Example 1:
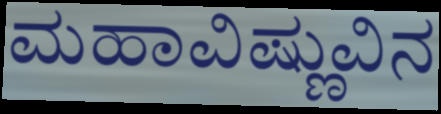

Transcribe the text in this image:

ಮಹಾವಿಷ್ಣುವಿನ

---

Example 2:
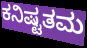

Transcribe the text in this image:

ಕನಿಷ್ಟತಮ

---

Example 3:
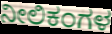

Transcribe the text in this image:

ನೀಲಿಕಂಗಳ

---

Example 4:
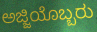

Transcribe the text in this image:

ಅಜ್ಜಿಯೊಬ್ಬರು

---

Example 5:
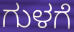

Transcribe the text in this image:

ಗುಳಗೆ